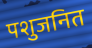
पशुजनित